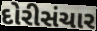
દોરીસંચાર